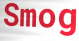
Smog